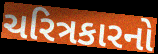
ચરિત્રકારનો